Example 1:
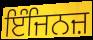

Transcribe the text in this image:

ਇੰਜਿਨਜ਼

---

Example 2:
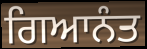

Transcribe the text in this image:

ਗਿਆਨੰਤ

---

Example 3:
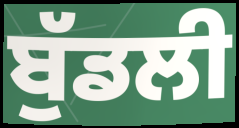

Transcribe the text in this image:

ਬੁੱਡਲੀ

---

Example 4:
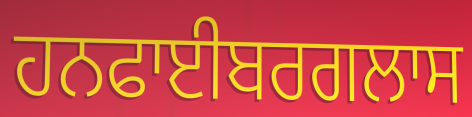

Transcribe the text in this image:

ਹਨਫਾਈਬਰਗਲਾਸ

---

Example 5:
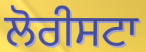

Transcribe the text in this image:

ਲੋਰੀਸਟਾ